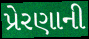
પ્રેરણાની